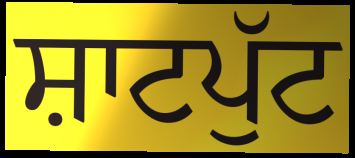
ਸ਼ਾਟਪੁੱਟ